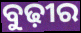
ବୁଢ଼ୀର